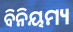
ବିନିୟମ୍ୟ